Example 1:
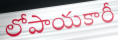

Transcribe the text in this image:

లోపాయకారీ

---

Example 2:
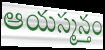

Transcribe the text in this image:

ఆయస్మన్తం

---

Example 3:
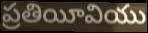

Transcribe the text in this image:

ప్రతియీవియు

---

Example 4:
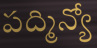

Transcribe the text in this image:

పద్మిన్యో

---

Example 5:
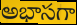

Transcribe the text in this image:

అభాసగా